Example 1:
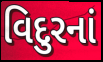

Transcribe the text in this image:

વિદુરનાં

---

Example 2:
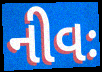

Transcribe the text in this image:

નીવઃ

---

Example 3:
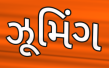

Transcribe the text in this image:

ઝૂમિંગ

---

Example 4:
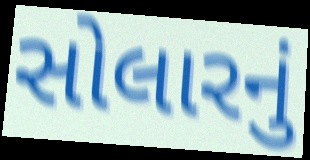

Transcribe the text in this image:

સોલારનું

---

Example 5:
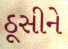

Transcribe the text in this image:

ઠૂસીને